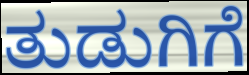
ತುಡುಗಿಗೆ